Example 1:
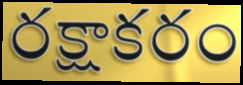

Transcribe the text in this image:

రక్షాకరం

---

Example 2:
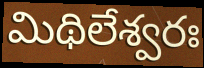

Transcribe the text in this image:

మిథిలేశ్వరః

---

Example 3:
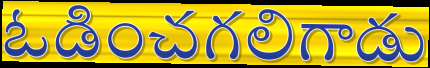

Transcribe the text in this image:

ఓడించగలిగాడు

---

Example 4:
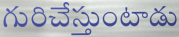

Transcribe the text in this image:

గురిచేస్తుంటాడు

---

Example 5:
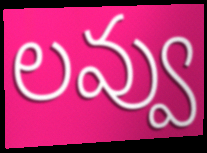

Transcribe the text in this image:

లవ్వు